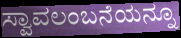
ಸ್ವಾವಲಂಬನೆಯನ್ನೂ